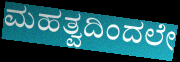
ಮಹತ್ವದಿಂದಲೇ